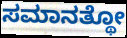
ಸಮಾನತ್ಥೋ